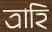
ত্রাহি